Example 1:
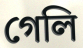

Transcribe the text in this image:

গেলি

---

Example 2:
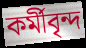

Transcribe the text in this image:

কর্মীবৃন্দ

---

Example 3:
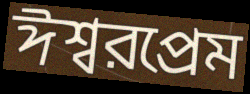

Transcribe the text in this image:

ঈশ্বরপ্রেম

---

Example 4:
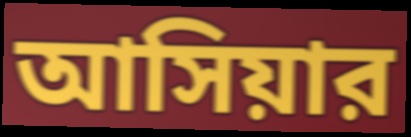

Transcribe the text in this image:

আসিয়ার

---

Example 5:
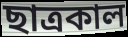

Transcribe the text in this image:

ছাত্রকাল